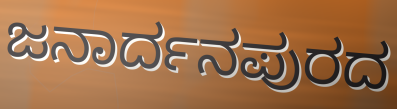
ಜನಾರ್ದನಪುರದ